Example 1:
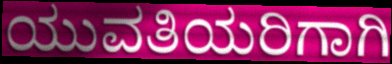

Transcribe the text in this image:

ಯುವತಿಯರಿಗಾಗಿ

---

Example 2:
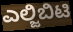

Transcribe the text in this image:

ಎಲ್ಜಿಬಿಟಿ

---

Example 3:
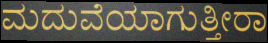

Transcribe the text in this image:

ಮದುವೆಯಾಗುತ್ತೀರಾ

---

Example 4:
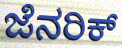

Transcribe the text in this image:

ಜೆನರಿಕ್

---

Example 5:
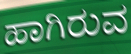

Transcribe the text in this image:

ಹಾಗಿರುವ